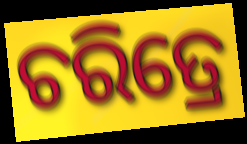
ଚରିତ୍ରେ